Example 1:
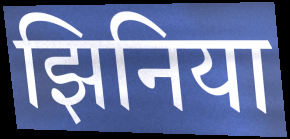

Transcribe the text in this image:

झिनिया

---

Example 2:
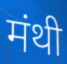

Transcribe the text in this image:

मंथी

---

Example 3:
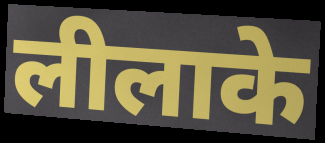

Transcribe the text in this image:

लीलाके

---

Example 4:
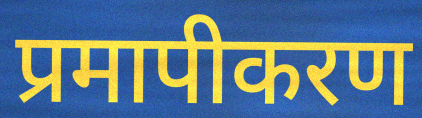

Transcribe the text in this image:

प्रमापीकरण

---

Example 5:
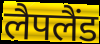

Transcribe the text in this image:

लैपलैंड